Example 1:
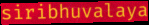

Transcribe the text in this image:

siribhuvalaya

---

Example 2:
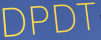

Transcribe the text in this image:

DPDT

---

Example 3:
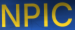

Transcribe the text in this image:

NPIC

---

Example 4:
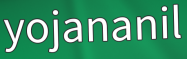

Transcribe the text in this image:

yojananil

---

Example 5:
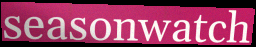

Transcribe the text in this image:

seasonwatch